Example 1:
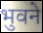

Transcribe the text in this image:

भुवने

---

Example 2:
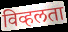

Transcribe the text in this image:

विव्हलता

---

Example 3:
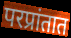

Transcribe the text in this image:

परप्रांतात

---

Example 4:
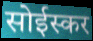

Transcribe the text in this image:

सोईस्कर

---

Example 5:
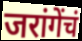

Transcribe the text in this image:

जरांगेंचं